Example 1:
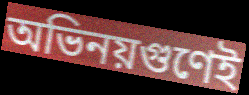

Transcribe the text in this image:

অভিনয়গুণেই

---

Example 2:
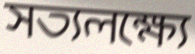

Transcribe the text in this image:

সত্যলক্ষ্যে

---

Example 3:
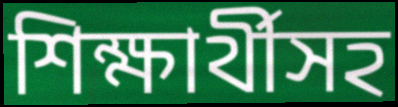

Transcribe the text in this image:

শিক্ষার্থীসহ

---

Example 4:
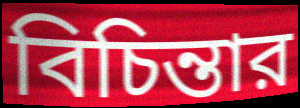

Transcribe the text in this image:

বিচিন্তার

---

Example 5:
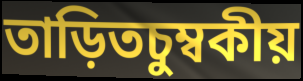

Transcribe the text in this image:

তাড়িতচুম্বকীয়